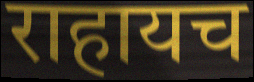
राहायच